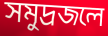
সমুদ্রজলে